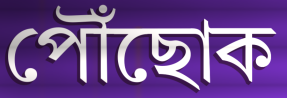
পৌঁছোক